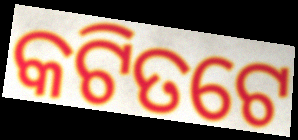
କଟିତଟେ